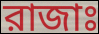
রাজাঃ